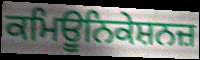
ਕਮਿਊਨਿਕੇਸ਼ਨਜ਼